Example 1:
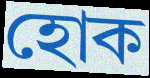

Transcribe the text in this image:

হোক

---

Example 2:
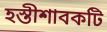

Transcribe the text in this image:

হস্তীশাবকটি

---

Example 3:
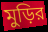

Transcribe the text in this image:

মুড়ির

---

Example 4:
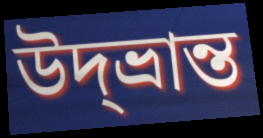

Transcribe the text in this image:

উদ্‌ভ্রান্ত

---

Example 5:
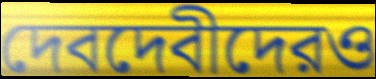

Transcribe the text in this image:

দেবদেবীদেরও